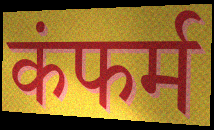
कंफर्म